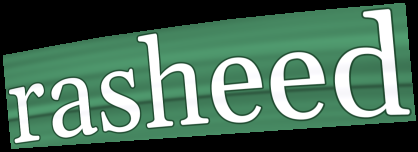
rasheed